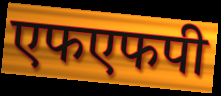
एफएफपी